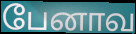
பேனாவ